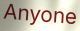
Anyone